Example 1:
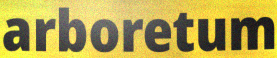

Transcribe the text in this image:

arboretum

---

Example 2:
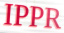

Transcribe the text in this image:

IPPR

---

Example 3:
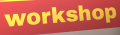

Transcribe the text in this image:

workshop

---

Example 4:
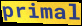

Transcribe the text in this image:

primal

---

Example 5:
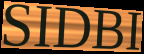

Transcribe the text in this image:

SIDBI